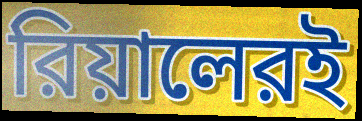
রিয়ালেরই